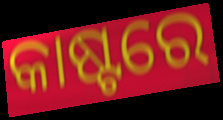
କାଷ୍ଟରେ